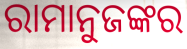
ରାମାନୁଜଙ୍କର